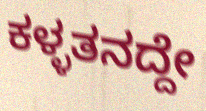
ಕಳ್ಳತನದ್ದೇ